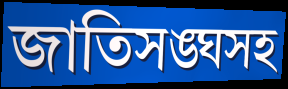
জাতিসঙ্ঘসহ